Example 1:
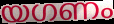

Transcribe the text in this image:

യഗണം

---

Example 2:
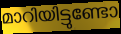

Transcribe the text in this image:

മാറിയിട്ടുണ്ടോ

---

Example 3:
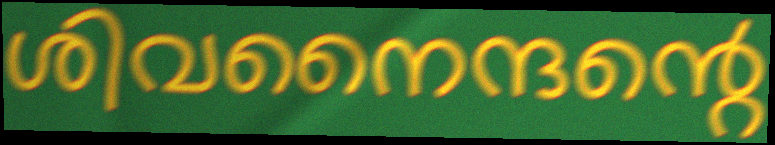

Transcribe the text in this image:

ശിവനൈന്ദന്റെ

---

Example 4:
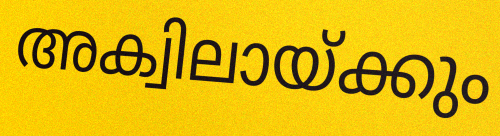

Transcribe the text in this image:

അക്വിലായ്ക്കും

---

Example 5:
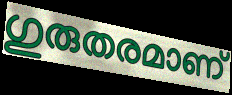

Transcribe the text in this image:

ഗുരുതരമാണ്